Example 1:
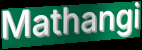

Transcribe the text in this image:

Mathangi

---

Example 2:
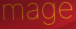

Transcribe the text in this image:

mage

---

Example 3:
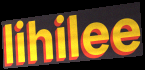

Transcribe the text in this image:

lihilee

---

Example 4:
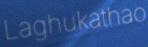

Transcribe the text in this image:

Laghukathao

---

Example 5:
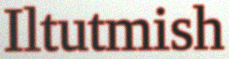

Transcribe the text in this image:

Iltutmish